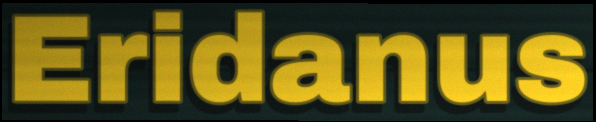
Eridanus